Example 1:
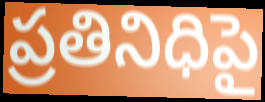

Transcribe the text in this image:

ప్రతినిధిపై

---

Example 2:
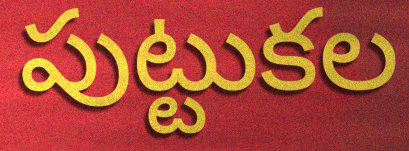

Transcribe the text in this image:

పుట్టుకల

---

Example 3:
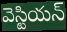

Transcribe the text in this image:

వెస్టియన్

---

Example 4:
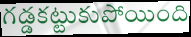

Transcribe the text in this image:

గడ్డకట్టుకుపోయింది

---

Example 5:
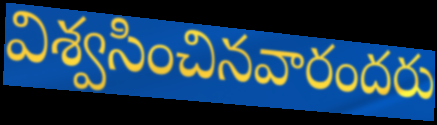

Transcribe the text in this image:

విశ్వసించినవారందరు